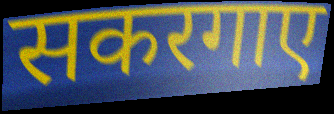
सकरगाए